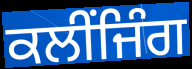
ਕਲੀਂਜਿੰਗ